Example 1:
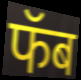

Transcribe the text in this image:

फॅब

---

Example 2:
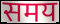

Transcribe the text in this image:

समय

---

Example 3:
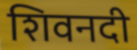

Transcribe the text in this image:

शिवनदी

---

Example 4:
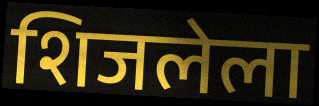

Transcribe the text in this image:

शिजलेला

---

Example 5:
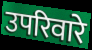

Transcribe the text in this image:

उपरिवारे